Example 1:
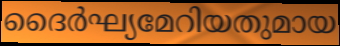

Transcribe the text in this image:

ദൈർഘ്യമേറിയതുമായ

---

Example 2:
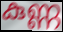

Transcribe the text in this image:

കുണ്ണ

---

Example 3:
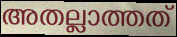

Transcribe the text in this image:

അതല്ലാത്തത്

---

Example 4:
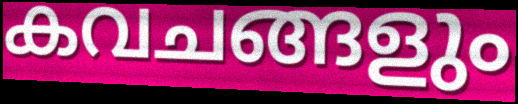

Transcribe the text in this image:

കവചങ്ങളും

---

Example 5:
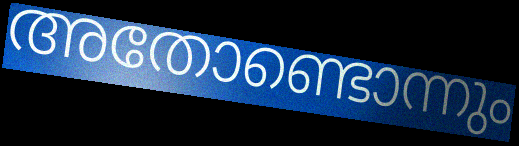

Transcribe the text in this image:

അതോണ്ടൊന്നും